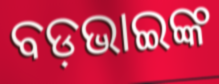
ବଡ଼ଭାଇଙ୍କ